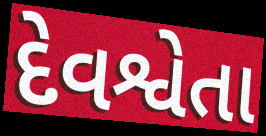
દેવશ્વેતા